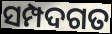
ସମ୍ପଦଗତ